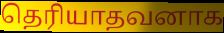
தெரியாதவனாக